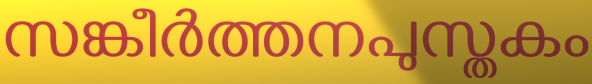
സങ്കീർത്തനപുസ്തകം